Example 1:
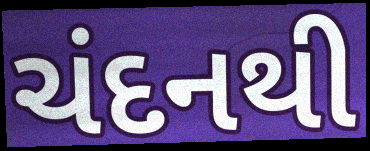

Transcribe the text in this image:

ચંદનથી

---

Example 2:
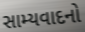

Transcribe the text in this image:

સામ્યવાદનો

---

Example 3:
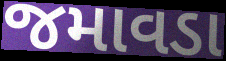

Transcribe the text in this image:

જમાવડા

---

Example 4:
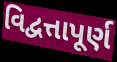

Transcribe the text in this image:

વિદ્વત્તાપૂર્ણ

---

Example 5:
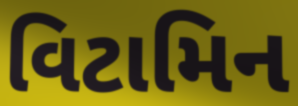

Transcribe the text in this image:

વિટામિન